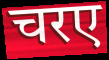
चरए